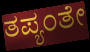
ತಪ್ಯಂತೇ